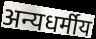
अन्यधर्मीय